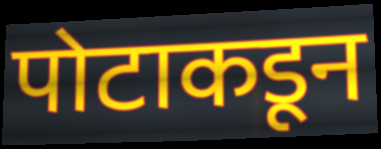
पोटाकडून